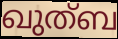
ഖുത്ബ